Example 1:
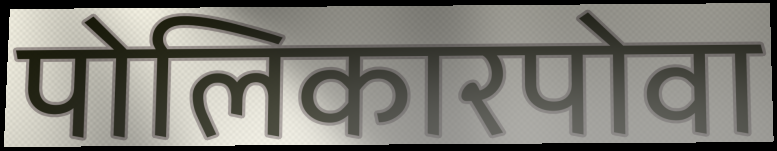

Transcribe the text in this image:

पोलिकारपोवा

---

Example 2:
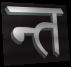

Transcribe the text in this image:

न्त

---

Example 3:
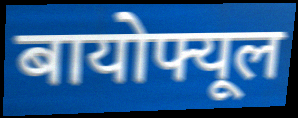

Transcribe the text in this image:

बायोफ्यूल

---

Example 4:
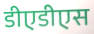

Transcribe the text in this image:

डीएडीएस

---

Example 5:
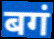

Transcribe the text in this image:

बगं